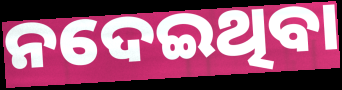
ନଦେଇଥିବା